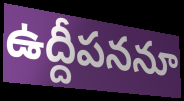
ఉద్దీపననూ